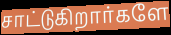
சாட்டுகிறார்களே